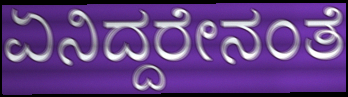
ಏನಿದ್ದರೇನಂತೆ